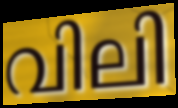
വിലി